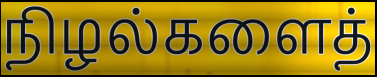
நிழல்களைத்